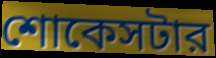
শোকেসটার